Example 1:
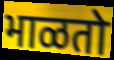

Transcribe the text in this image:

भाळतो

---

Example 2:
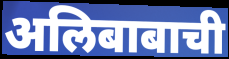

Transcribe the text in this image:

अलिबाबाची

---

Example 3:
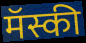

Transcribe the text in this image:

मॅस्की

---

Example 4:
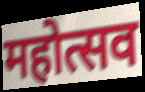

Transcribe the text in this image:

महोत्सव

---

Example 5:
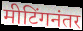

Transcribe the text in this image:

मीटिंगनंतर